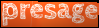
presage